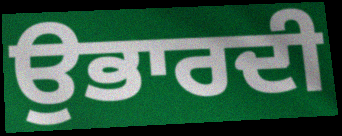
ਉਭਾਰਦੀ